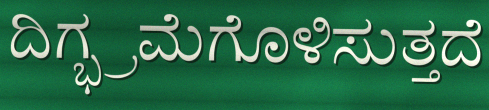
ದಿಗ್ಭ್ರಮೆಗೊಳಿಸುತ್ತದೆ